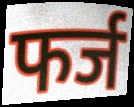
फर्ज